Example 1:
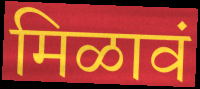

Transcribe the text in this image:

मिळावं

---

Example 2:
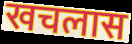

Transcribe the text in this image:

खचलास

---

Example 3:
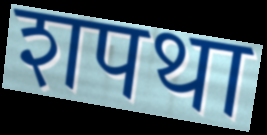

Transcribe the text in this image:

शपथा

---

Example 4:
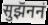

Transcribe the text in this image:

सुझॅननं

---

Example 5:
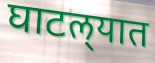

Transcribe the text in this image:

घाटल्यात